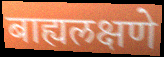
बाह्यलक्षणे